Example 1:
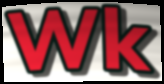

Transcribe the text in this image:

Wk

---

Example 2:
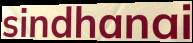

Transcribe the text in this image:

sindhanai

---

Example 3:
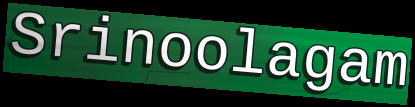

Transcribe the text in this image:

Srinoolagam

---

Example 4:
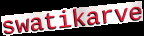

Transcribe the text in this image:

swatikarve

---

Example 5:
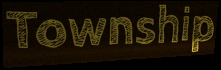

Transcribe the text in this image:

Township